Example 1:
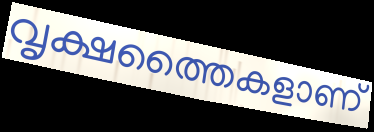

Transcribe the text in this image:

വൃക്ഷത്തൈകളാണ്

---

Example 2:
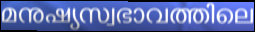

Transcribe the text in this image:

മനുഷ്യസ്വഭാവത്തിലെ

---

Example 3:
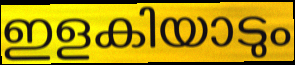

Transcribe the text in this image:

ഇളകിയാടും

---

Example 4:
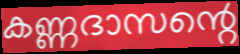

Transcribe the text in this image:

കണ്ണദാസന്റെ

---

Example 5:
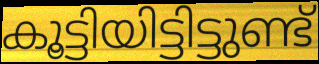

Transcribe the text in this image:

കൂട്ടിയിട്ടിട്ടുണ്ട്